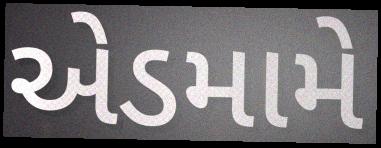
એડમામે